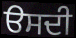
ੳਸਦੀ